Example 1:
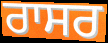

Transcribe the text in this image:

ਰਾਸਰ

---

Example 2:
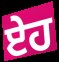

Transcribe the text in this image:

ਏਹ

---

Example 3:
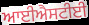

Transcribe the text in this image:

ਆਈਐਸਟੀਈ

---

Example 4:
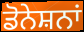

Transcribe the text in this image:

ਡੋਨੇਸ਼ਨਾਂ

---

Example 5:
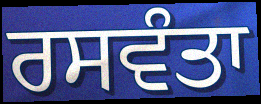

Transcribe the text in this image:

ਰਸਵੰਤਾ